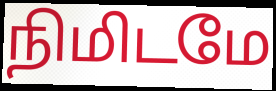
நிமிடமே